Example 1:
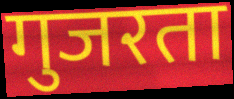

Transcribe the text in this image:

गुजरता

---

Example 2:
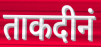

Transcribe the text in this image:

ताकदीनं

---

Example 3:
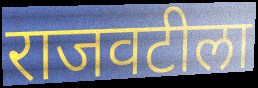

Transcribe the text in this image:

राजवटीला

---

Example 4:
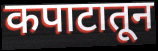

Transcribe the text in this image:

कपाटातून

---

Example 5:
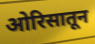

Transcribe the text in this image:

ओरिसातून